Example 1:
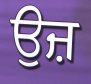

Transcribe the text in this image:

ਉਜ਼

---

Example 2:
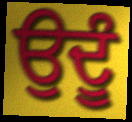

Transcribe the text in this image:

ਉਦੂੰ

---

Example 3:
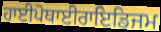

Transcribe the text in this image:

ਹਾਈਪੋਥਾਈਰਾਇਡਿਜਮ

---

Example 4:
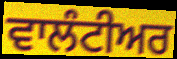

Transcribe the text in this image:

ਵਾਲੰਟੀਅਰ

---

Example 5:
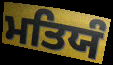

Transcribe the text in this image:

ਮਤਿਯੰ